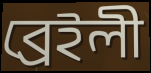
ব্রেইলী